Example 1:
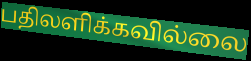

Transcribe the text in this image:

பதிலளிக்கவில்லை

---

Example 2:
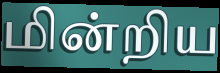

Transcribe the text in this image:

மின்றிய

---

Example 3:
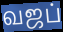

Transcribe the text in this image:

வஜப்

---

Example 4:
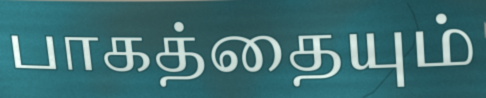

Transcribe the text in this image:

பாகத்தையும்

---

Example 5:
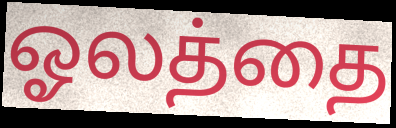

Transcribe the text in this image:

ஓலத்தை